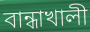
বান্ধাখালী